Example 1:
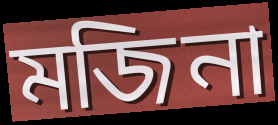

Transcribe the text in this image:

মজিনা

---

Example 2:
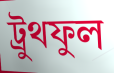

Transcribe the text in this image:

ট্রুথফুল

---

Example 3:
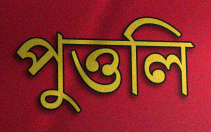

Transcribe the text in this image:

পুত্তলি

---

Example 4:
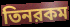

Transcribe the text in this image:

তিনরকম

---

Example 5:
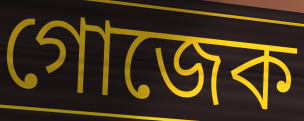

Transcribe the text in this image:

গোজেক